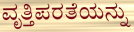
ವೃತ್ತಿಪರತೆಯನ್ನು